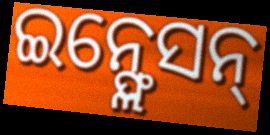
ଇନ୍ଫ୍ଲେସନ୍